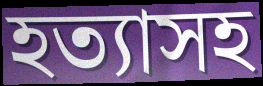
হত্যাসহ